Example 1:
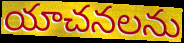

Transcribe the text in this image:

యాచనలను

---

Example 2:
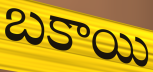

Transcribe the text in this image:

బకాయి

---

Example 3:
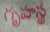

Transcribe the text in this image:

గృహస్థ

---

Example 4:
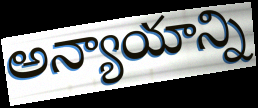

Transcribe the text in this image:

అన్యాయాన్ని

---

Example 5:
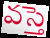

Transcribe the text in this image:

వస్తె